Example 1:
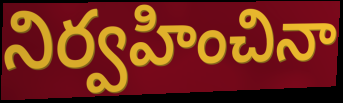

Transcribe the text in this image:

నిర్వహించినా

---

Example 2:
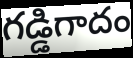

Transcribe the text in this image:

గడ్డిగాదం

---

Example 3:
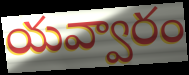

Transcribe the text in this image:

యవ్వారం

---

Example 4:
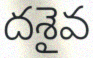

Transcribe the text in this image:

దశైవ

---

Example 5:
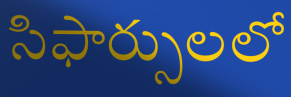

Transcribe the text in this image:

సిఫార్సులలో